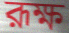
রূক্ষ